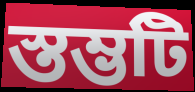
স্তম্ভটি